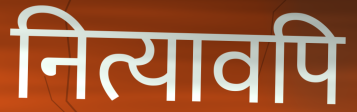
नित्यावपि